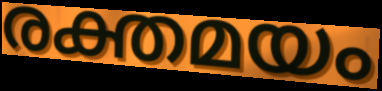
രക്തമയം